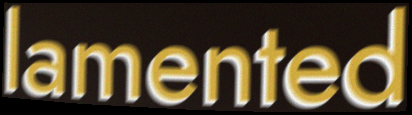
lamented